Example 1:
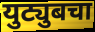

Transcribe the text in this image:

युट्युबचा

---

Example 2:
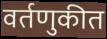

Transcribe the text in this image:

वर्तणुकीत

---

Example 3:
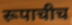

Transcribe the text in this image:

रूपाचीच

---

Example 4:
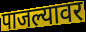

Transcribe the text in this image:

पाजल्यावर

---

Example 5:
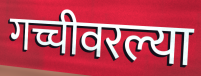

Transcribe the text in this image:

गच्चीवरल्या